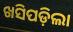
ଖସିପଡ଼ିଲା